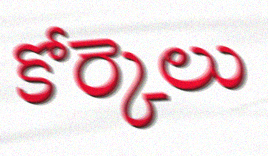
కోర్కెలు